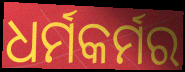
ଧର୍ମକର୍ମର